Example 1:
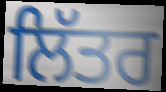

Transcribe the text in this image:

ਲਿੱਤਰ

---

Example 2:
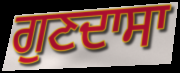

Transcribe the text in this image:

ਗੁਣਦਾਸਾ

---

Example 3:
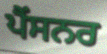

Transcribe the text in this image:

ਪੈਂਸਨਰ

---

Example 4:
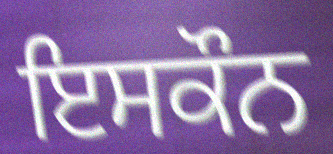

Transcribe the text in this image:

ਇਸਕੌਨ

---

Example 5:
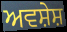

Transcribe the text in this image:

ਅਵਸ਼ੇਸ਼